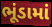
ભૂંડામાં